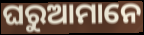
ଘରୁଆମାନେ